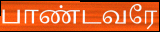
பாண்டவரே